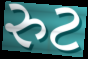
રુટ